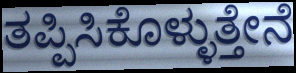
ತಪ್ಪಿಸಿಕೊಳ್ಳುತ್ತೇನೆ